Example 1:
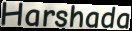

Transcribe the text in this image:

Harshada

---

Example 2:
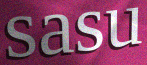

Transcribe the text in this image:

sasu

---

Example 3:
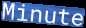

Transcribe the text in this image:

Minute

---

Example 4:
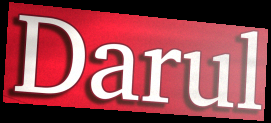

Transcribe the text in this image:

Darul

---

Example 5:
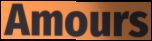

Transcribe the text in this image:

Amours